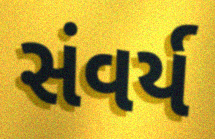
સંવર્ય